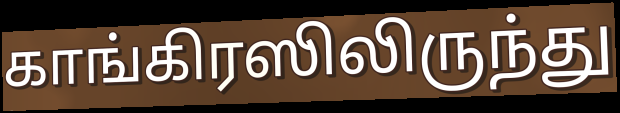
காங்கிரஸிலிருந்து